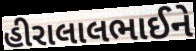
હીરાલાલભાઈને